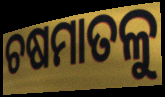
ଚଷମାତଳୁ